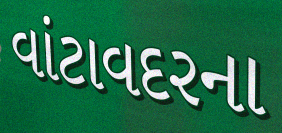
વાંટાવદરના